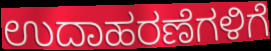
ಉದಾಹರಣೆಗಳಿಗೆ